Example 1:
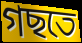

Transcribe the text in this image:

গছতে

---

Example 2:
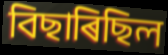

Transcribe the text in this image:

বিছাৰিছিল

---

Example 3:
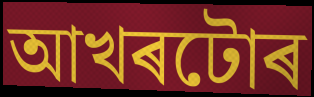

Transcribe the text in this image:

আখৰটোৰ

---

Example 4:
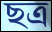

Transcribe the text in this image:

ছত্ৰ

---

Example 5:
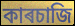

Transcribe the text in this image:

কাৰচাজি